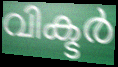
വിക്ടർ